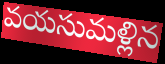
వయసుమళ్లిన